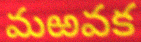
మఱవక